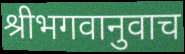
श्रीभगवानुवाच